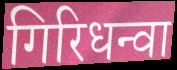
गिरिधन्वा